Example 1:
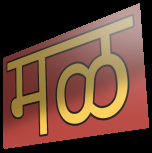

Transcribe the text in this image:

मळ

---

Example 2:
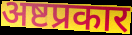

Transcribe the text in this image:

अष्टप्रकार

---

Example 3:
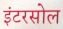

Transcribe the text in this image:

इंटरसोल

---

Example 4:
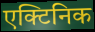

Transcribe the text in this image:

एक्टिनिक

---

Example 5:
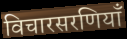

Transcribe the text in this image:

विचारसरणियाँ